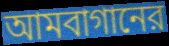
আমবাগানের